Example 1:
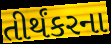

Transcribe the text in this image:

તીર્થંકરના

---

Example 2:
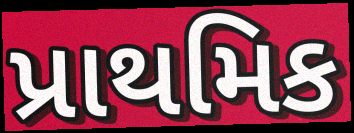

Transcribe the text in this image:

પ્રાથમિક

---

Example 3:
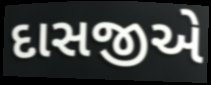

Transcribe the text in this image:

દાસજીએ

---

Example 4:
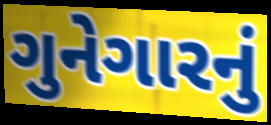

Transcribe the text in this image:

ગુનેગારનું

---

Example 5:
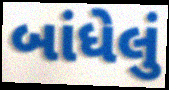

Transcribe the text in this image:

બાંધેલું